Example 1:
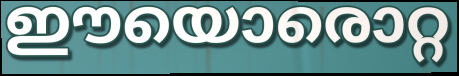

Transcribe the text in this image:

ഈയൊരൊറ്റ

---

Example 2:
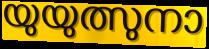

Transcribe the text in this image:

യുയുത്സുനാ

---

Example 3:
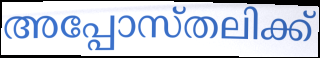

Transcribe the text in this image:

അപ്പോസ്തലിക്ക്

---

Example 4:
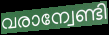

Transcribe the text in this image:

വരാന്വേണ്ടി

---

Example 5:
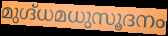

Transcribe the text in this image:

മുഗ്ദ്ധമധുസൂദനം